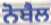
ਨੋਬੈਲ